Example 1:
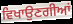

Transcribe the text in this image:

ਵਿਖਾਉਣਗੀਆਂ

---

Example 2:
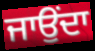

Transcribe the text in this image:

ਜਾਉਂਦਾ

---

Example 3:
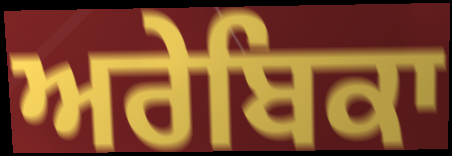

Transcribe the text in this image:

ਅਰੇਬਿਕਾ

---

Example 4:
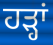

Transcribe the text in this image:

ਹਡ਼੍ਹਾਂ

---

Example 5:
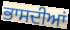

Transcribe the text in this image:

ਭਾਸਦੀਆਂ